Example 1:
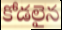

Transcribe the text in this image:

కోడలైన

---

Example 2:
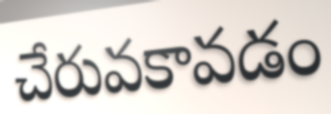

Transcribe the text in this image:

చేరువకావడం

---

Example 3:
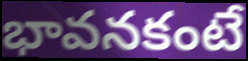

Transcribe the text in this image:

భావనకంటే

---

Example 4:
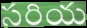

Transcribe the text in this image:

సరియ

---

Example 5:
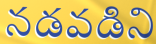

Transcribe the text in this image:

నడవడిని